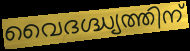
വൈദഗ്ദ്ധ്യത്തിന്